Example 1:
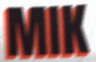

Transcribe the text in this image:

MIK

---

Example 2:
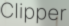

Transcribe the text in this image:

Clipper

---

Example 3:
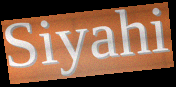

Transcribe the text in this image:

Siyahi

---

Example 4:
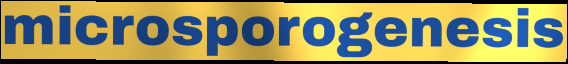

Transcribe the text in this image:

microsporogenesis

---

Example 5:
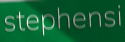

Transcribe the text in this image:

stephensi